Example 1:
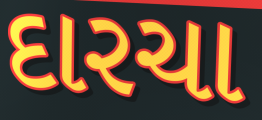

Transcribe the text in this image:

દારચા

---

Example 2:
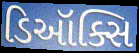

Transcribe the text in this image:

ડિઑક્સિ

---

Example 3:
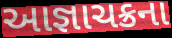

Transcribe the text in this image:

આજ્ઞાચક્રના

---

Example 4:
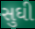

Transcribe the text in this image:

સુઘી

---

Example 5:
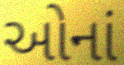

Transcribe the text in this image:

ઓનાં